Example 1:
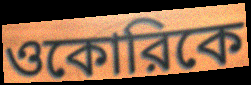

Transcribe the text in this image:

ওকোরিকে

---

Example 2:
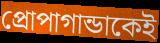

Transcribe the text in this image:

প্রোপাগান্ডাকেই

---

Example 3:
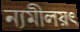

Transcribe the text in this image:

ন্যমীলয়ৎ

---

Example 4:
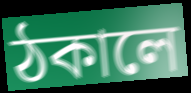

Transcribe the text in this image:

ঠকালে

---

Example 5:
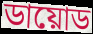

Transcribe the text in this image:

ডায়োড